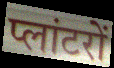
प्लांटरों